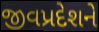
જીવપ્રદેશને